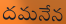
దమనేన